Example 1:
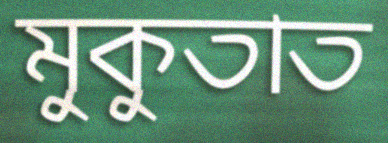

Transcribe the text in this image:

মুকুতাত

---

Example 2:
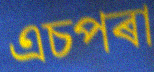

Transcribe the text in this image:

এচপৰা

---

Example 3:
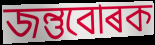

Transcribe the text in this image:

জন্তুবোৰক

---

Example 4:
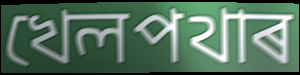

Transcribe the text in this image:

খেলপথাৰ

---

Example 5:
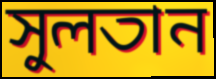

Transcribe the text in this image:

সুলতান